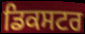
ਡਿਕਸਟਰ